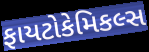
ફાયટોકેમિકલ્સ